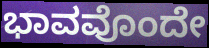
ಭಾವವೊಂದೇ